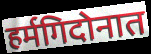
हर्मगिदोनात